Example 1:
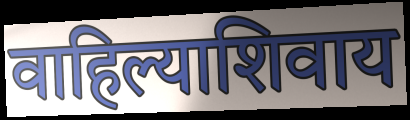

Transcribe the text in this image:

वाहिल्याशिवाय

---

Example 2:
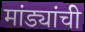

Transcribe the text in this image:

मांड्यांची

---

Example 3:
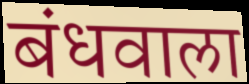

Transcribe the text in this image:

बंधवाला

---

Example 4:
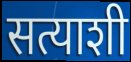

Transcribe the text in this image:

सत्याशी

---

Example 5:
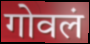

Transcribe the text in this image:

गोवलं